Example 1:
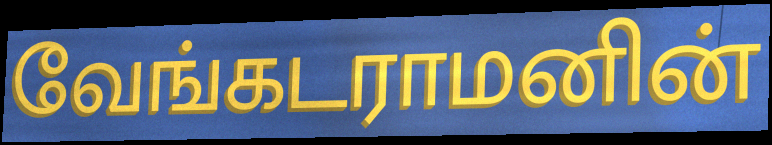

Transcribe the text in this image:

வேங்கடராமனின்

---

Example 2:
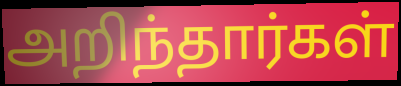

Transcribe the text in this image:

அறிந்தார்கள்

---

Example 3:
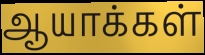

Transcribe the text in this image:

ஆயாக்கள்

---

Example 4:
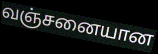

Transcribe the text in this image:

வஞ்சனையான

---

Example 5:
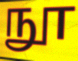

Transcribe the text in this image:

நூ